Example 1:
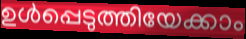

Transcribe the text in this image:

ഉൾപ്പെടുത്തിയേക്കാം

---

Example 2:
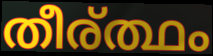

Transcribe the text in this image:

തീര്ത്ഥം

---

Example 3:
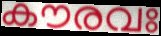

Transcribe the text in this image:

കൗരവഃ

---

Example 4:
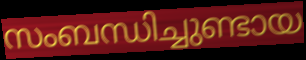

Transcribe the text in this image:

സംബന്ധിച്ചുണ്ടായ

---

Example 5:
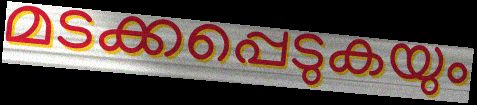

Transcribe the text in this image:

മടക്കപ്പെടുകയും